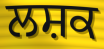
ਲਸ਼ਕ